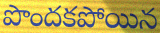
పొందకపోయిన